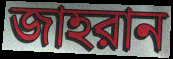
জাহরান